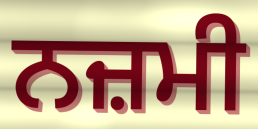
ਨਜ਼ਮੀ